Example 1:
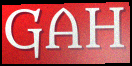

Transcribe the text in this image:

GAH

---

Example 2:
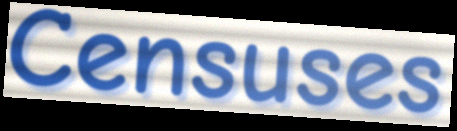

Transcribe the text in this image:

Censuses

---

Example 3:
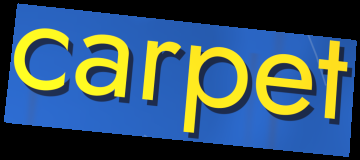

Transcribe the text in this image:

carpet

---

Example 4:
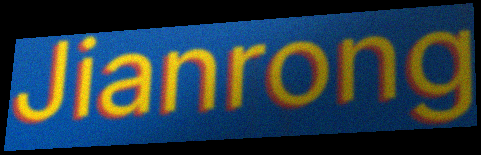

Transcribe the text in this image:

Jianrong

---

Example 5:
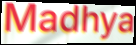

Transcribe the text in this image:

Madhya